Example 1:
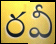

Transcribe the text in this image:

రవీ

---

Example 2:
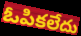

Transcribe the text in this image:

ఓపికలేదు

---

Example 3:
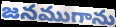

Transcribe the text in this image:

జనముగాను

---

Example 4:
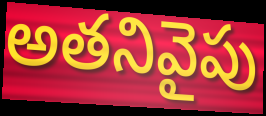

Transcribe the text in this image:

అతనివైపు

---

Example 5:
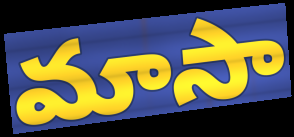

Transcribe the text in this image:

మాసా